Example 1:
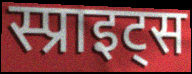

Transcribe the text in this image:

स्प्राइट्स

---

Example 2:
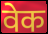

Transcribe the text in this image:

वेक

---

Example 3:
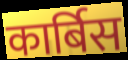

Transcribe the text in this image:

कार्बिस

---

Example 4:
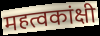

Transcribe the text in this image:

महत्वकांक्षी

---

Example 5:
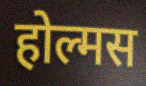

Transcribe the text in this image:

होल्मस